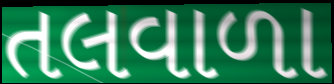
તલવાળા